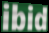
ibid